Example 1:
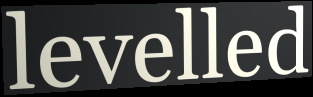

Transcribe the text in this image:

levelled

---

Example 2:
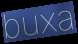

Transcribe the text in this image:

buxa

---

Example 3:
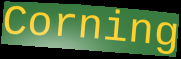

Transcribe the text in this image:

Corning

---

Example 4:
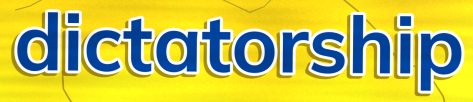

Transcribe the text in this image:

dictatorship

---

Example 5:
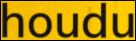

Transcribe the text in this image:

houdu